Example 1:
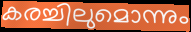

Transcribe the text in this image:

കരച്ചിലുമൊന്നും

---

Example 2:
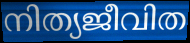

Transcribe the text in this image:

നിത്യജീവിത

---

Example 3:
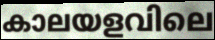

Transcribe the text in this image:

കാലയളവിലെ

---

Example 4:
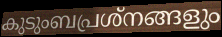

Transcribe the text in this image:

കുടുംബപ്രശ്നങ്ങളും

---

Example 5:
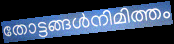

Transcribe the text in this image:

തോട്ടങ്ങൾനിമിത്തം